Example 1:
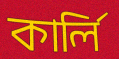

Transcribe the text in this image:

কার্লি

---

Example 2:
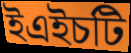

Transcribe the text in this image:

ইএইচটি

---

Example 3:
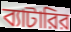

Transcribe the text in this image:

ব্যাটারির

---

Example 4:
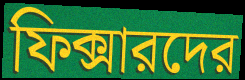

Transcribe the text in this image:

ফিক্সারদের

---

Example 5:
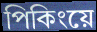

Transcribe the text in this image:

পিকিংয়ে